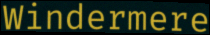
Windermere